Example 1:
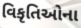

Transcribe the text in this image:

વિકૃતિઓના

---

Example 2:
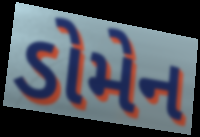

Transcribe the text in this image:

ડોમેન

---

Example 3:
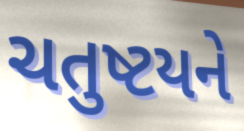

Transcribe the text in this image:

ચતુષ્ટયને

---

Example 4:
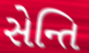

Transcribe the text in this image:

સેન્તિ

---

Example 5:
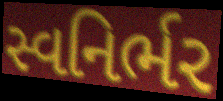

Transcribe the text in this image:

સ્વનિર્ભર